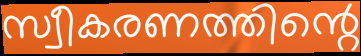
സ്വീകരണത്തിന്റെ